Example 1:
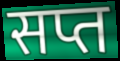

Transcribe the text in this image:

सप्त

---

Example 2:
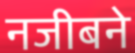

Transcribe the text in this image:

नजीबने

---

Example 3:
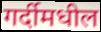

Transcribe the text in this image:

गर्दीमधील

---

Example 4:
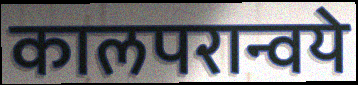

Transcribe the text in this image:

कालपरान्वये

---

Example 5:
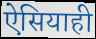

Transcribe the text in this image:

ऐसियाही